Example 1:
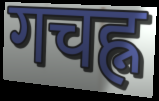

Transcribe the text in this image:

गचह्न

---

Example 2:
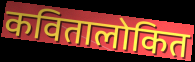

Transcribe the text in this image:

कवितालोकित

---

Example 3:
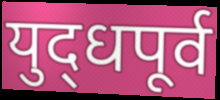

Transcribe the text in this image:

युद्धपूर्व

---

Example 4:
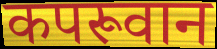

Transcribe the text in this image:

कपरूवान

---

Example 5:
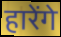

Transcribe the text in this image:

हारेंगे